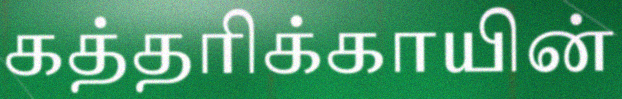
கத்தரிக்காயின்